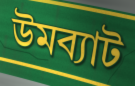
উমব্যাট